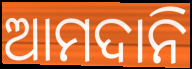
ଆମଦାନି